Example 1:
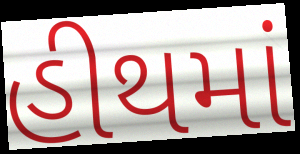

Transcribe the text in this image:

હીથમાં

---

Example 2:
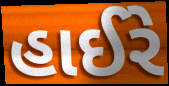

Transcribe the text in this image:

હાઈરે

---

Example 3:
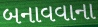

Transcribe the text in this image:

બનાવવાના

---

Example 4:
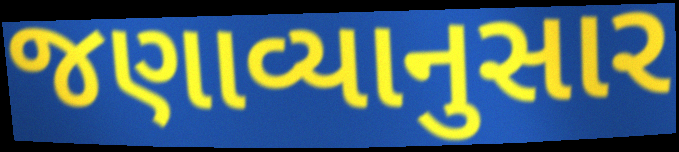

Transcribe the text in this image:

જણાવ્યાનુસાર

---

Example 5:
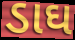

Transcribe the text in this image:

ડાઘ